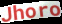
Jhoro